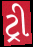
ટ્રી